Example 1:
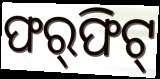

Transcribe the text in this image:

ଫର୍‍ଫିଟ୍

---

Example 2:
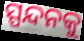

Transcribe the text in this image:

ସ୍ପନ୍ଦନକୁ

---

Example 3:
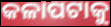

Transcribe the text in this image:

କଳାପଟାକୁ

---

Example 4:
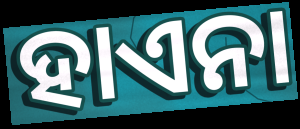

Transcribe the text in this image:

ହାଏନା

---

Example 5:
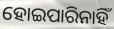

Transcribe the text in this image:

ହୋଇପାରିନାହିଁ